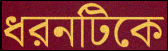
ধরনটিকে